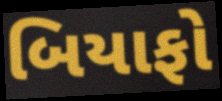
બિયાફો